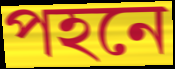
পহনে